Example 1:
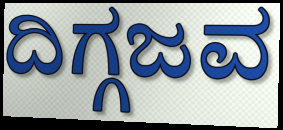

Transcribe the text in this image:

ದಿಗ್ಗಜವ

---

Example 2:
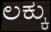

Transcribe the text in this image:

ಲಕ್ಕು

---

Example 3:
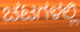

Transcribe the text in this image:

ಚಟಗಳಲ್ಲಿ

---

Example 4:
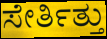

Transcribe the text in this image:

ಸೇರ್ತಿತ್ತು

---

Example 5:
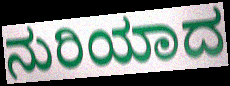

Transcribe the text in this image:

ನುರಿಯಾದ